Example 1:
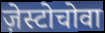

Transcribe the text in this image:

ज़ेस्टोचोवा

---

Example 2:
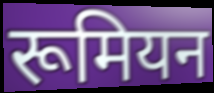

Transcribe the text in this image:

रूमियन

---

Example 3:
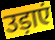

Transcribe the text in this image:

उड़ाएं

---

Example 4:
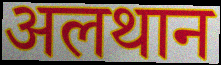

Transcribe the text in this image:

अलथान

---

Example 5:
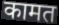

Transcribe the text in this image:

कामत